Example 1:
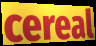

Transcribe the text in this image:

cereal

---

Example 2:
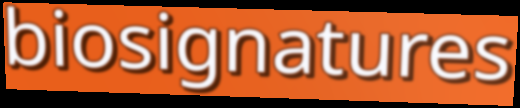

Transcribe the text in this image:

biosignatures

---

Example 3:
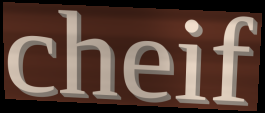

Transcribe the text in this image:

cheif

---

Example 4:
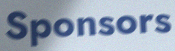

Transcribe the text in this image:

Sponsors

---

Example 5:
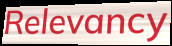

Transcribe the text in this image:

Relevancy